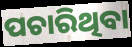
ପଚାରିଥିବା